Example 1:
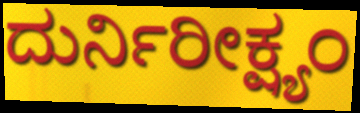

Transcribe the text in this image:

ದುರ್ನಿರೀಕ್ಷ್ಯಂ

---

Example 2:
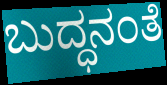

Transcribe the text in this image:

ಬುದ್ಧನಂತೆ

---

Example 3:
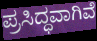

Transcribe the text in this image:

ಪ್ರಸಿದ್ಧವಾಗಿವೆ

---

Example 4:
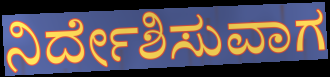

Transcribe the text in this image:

ನಿರ್ದೇಶಿಸುವಾಗ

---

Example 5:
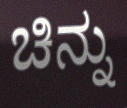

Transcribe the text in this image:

ಚಿನ್ನು